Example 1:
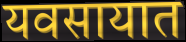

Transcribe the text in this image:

यवसायात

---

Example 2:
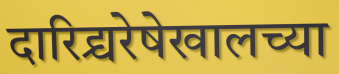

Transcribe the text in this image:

दारिद्र्यरेषेखालच्या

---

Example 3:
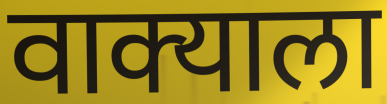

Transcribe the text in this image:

वाक्‍याला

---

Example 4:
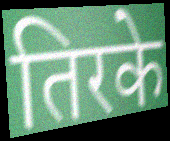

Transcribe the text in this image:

तिरके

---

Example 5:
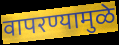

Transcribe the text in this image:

वापरण्यामुळे